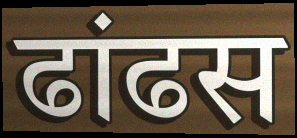
ढांढस